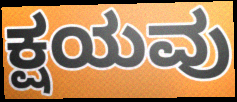
ಕ್ಷಯವು